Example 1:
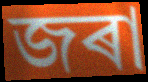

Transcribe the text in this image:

জৰা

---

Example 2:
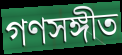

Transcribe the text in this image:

গণসঙ্গীত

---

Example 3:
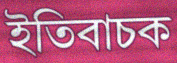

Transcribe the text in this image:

ইতিবাচক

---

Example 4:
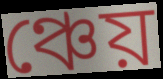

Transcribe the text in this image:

ঞ্চেয়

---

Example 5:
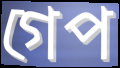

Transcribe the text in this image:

গেপ